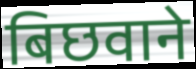
बिछवाने